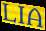
LIA